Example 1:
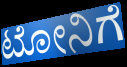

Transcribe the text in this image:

ಟೋನಿಗೆ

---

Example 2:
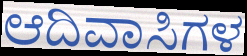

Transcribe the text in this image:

ಆದಿವಾಸಿಗಳ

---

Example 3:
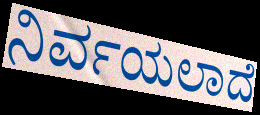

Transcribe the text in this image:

ನಿರ್ವಯಲಾದೆ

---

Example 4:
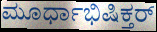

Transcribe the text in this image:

ಮೂರ್ಧಾಭಿಷಿಕ್ತರ್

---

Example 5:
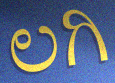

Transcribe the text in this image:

ಲಗಿ